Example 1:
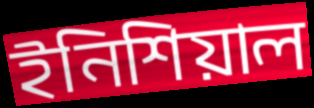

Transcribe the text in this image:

ইনিশিয়াল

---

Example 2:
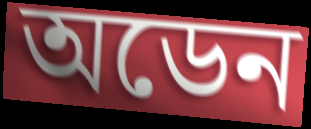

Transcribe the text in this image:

অডেন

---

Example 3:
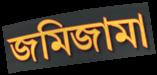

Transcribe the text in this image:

জমিজামা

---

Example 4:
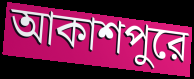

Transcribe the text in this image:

আকাশপুরে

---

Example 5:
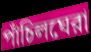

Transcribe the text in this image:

পাঁচিলঘেরা